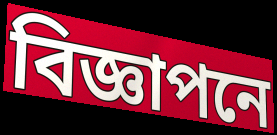
বিজ্ঞাপনে